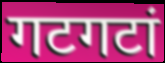
गटगटां